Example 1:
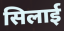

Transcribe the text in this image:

सिलाई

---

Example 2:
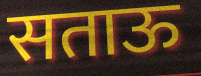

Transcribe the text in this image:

सताऊ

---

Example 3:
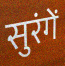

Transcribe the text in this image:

सुरंगें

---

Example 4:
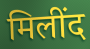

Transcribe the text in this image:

मिलींद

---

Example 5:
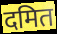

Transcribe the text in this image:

दमित